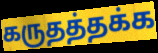
கருதத்தக்க